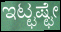
ಇಟ್ಟಷ್ಟೇ